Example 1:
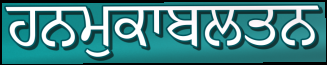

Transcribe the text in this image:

ਹਨਮੁਕਾਬਲਤਨ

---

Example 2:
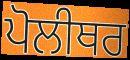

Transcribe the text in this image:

ਪੋਲੀਥਰ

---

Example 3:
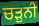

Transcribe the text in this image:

ਚੜੁਨੀ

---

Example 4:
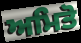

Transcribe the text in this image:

ਅਮਿਤੋ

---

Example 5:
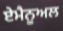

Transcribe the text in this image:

ਏਮੈਨੂਅਲ